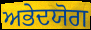
ਅਭੇਦਯੋਗ